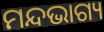
ମନ୍ଦଭାଗ୍ୟ